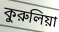
কুরুলিয়া